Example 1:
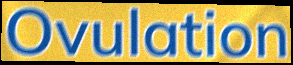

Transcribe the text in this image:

Ovulation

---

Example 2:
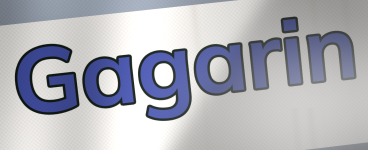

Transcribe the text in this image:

Gagarin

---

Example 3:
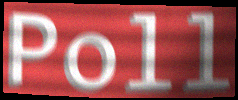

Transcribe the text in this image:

Poll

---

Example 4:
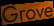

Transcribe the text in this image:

Grove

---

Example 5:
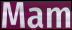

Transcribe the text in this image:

Mam